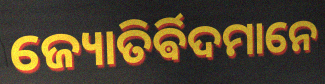
ଜ୍ୟୋତିର୍ଵିଦମାନେ